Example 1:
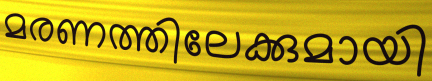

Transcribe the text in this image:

മരണത്തിലേക്കുമായി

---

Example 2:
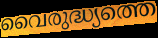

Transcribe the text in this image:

വൈരുദ്ധ്യത്തെ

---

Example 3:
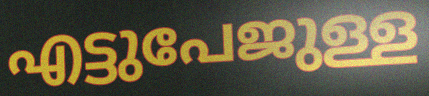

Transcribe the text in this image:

എട്ടുപേജുള്ള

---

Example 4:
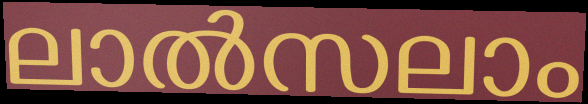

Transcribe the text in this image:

ലാൽസലാം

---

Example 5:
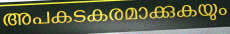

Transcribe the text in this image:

അപകടകരമാക്കുകയും